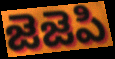
జెజెపి